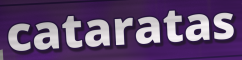
cataratas